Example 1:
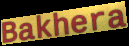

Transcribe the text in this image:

Bakhera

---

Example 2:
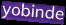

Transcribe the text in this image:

yobinde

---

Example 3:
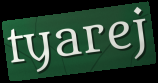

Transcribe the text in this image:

tyarej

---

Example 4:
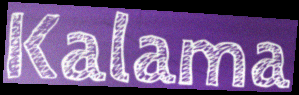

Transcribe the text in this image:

Kalama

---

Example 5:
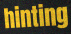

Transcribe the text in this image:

hinting